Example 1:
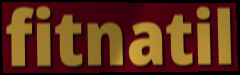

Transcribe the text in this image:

fitnatil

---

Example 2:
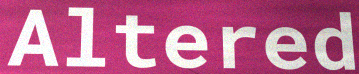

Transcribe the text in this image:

Altered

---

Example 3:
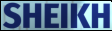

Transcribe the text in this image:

SHEIKH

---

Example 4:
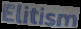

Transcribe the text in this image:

Elitism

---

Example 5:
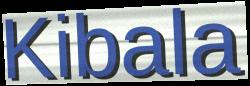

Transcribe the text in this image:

Kibala